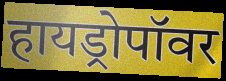
हायड्रोपॉवर